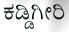
ಕಡ್ಡಿಗೀರಿ